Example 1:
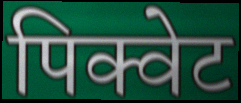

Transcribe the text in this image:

पिक्वेट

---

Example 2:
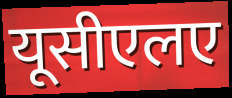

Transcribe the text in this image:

यूसीएलए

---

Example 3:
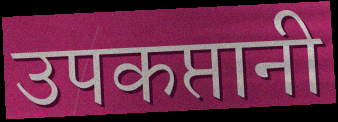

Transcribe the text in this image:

उपकप्तानी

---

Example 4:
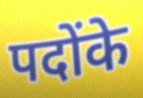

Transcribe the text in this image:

पदोंके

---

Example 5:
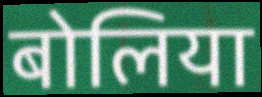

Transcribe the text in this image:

बोलिया